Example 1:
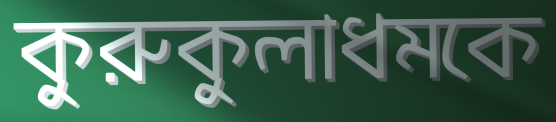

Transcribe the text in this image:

কুরুকুলাধমকে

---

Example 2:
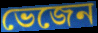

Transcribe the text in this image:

ভেজেন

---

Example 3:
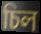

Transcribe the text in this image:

চিল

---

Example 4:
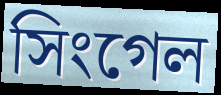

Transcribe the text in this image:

সিংগেল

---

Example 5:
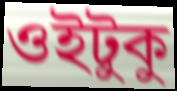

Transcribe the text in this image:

ওইটুকু